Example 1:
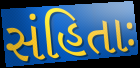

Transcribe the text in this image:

સંહિતાઃ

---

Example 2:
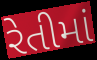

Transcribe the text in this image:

રેતીમાં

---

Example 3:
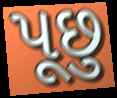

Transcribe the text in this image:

પૂછુ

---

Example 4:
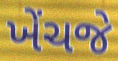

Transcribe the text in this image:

ખેંચજે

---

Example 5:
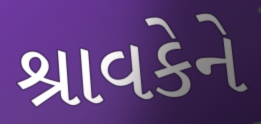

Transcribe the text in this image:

શ્રાવકેને